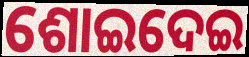
ଶୋଇଦେଇ